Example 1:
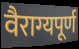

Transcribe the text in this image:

वैराग्यपूर्ण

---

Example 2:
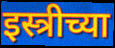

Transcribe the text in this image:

इस्त्रीच्या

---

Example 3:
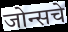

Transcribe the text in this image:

जोन्सचे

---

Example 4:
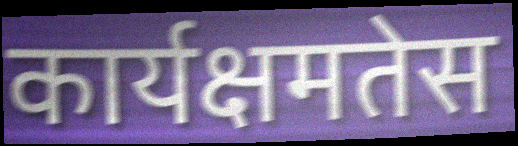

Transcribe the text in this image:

कार्यक्षमतेस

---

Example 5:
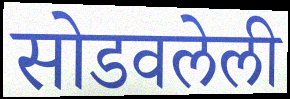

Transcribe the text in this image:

सोडवलेली